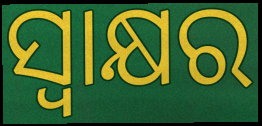
ସ୍ବାକ୍ଷର